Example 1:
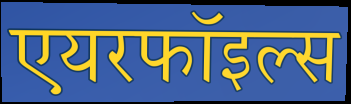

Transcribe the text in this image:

एयरफॉइल्स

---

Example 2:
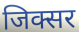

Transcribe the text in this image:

जिक्सर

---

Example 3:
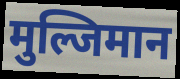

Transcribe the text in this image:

मुल्जिमान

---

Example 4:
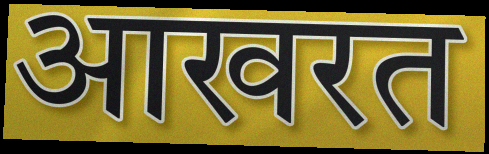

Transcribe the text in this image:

आखरत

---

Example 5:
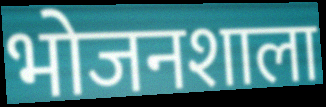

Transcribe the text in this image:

भोजनशाला